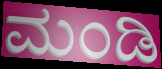
ಮಂಡಿ